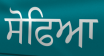
ਸੋਫਿਆ